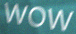
WOW